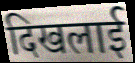
दिखलाई